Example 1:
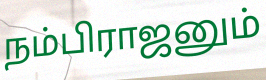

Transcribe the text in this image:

நம்பிராஜனும்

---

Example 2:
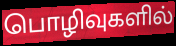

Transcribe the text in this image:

பொழிவுகளில்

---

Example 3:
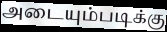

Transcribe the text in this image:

அடையும்படிக்கு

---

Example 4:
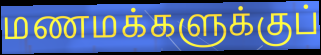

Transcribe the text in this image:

மணமக்களுக்குப்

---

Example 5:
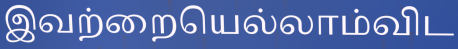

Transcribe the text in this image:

இவற்றையெல்லாம்விட